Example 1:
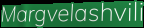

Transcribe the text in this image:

Margvelashvili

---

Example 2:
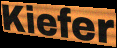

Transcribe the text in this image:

Kiefer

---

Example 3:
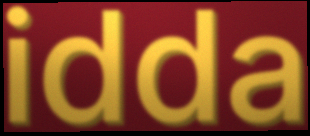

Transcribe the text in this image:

idda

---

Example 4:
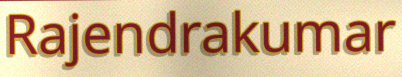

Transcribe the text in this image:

Rajendrakumar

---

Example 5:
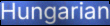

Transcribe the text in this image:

Hungarian